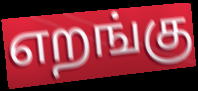
எறங்கு